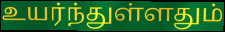
உயர்ந்துள்ளதும்